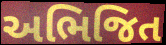
અભિજિત